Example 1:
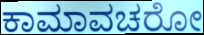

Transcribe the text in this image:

ಕಾಮಾವಚರೋ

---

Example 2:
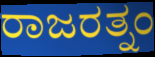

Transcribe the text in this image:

ರಾಜರತ್ನಂ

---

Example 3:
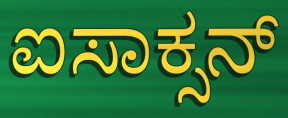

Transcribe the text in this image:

ಐಸಾಕ್ಸನ್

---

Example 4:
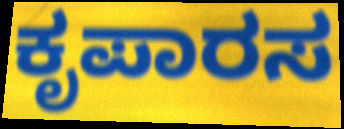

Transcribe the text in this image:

ಕೃಪಾರಸ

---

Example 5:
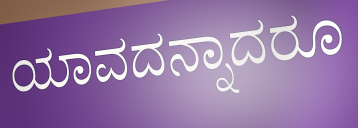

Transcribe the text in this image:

ಯಾವದನ್ನಾದರೂ